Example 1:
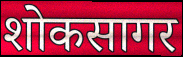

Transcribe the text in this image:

शोकसागर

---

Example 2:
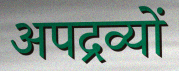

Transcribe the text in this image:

अपद्रव्यों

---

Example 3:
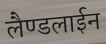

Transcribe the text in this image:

लैण्डलाईन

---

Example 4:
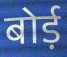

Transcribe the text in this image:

बोर्ड़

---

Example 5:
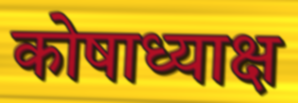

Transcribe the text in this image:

कोषाध्याक्ष